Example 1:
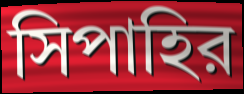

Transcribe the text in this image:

সিপাহির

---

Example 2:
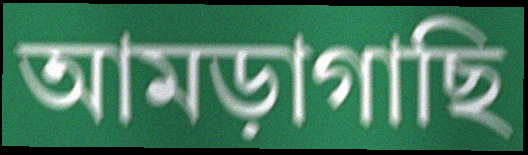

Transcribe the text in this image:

আমড়াগাছি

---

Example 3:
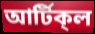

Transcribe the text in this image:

আর্টিক্‌ল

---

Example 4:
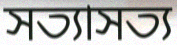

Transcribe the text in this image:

সত্যাসত্য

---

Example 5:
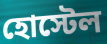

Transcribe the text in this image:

হোস্টেল